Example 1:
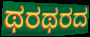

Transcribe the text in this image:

ಥರಥರದ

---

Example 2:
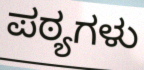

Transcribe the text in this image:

ಪಠ್ಯಗಳು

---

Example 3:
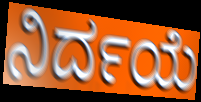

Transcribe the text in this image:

ನಿರ್ದಯೆ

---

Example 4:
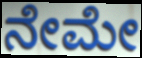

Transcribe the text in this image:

ನೇಮೇ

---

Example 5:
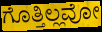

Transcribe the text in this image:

ಗೊತ್ತಿಲ್ಲವೋ